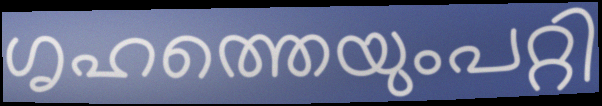
ഗൃഹത്തെയുംപറ്റി